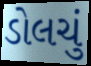
ડોલચું